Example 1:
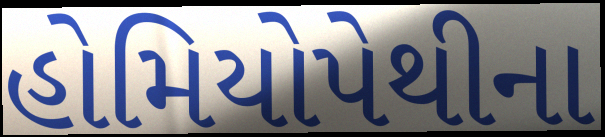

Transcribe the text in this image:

હોમિયોપેથીના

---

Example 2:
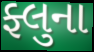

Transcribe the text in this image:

ફ્લુના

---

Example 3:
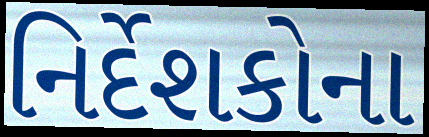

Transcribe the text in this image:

નિર્દેશકોના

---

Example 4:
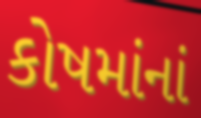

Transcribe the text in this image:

કોષમાંનાં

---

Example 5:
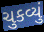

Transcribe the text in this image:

ચુકવ્યું